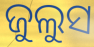
ଜୁଲୁସ